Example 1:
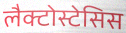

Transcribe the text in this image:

लैक्टोस्टेसिस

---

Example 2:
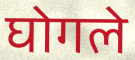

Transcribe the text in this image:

घोगले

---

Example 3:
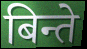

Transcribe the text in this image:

बिन्ते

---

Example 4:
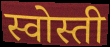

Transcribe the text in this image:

स्वोस्ती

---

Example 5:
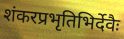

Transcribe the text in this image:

शंकरप्रभृतिभिर्देवैः